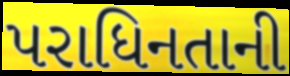
પરાધિનતાની